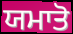
ਯਮਾਤੋ